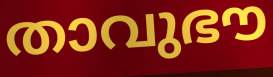
താവുഭൗ